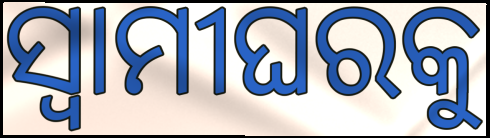
ସ୍ୱାମୀଘରକୁ